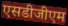
एसडीजीएम